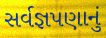
સર્વજ્ઞપણાનું